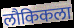
लौकिकला